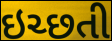
ઇચ્છતી